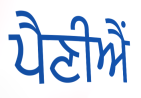
ਪੈਣੀਐਂ